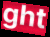
ght